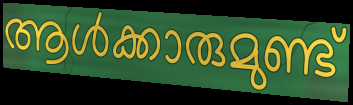
ആൾക്കാരുമുണ്ട്